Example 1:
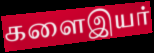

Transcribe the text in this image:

களைஇயர்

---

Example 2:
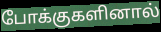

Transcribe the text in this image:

போக்குகளினால்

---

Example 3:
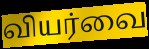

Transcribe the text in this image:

வியர்வை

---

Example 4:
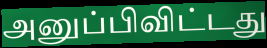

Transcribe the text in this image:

அனுப்பிவிட்டது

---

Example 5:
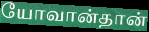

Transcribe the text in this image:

யோவான்தான்